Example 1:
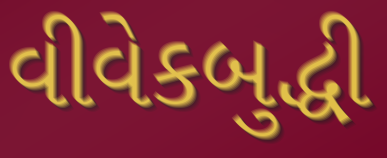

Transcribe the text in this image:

વીવેકબુદ્ધી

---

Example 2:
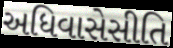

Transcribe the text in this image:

અધિવાસેસીતિ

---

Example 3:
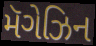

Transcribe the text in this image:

મૅગેઝિન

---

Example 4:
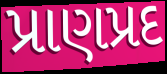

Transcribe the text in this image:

પ્રાણપ્રદ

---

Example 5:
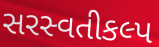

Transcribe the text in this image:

સરસ્વતીકલ્પ